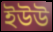
ইউউ